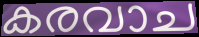
കരവാച